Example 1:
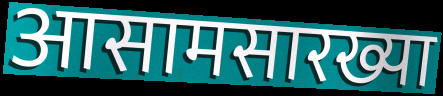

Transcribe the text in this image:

आसामसारख्या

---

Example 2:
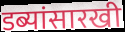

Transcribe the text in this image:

डब्यांसारखी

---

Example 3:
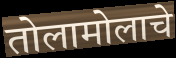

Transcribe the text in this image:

तोलामोलाचे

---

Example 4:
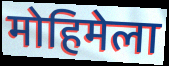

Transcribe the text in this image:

मोहिमेला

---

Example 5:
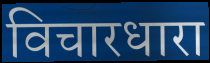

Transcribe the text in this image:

विचारधारा